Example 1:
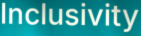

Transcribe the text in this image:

Inclusivity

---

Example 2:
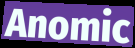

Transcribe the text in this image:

Anomic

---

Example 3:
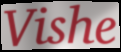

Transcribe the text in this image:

Vishe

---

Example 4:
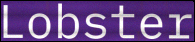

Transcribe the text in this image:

Lobster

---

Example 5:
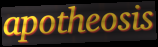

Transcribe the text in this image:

apotheosis